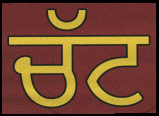
ਚੱਟ